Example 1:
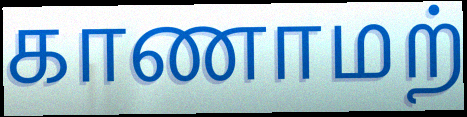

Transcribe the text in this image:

காணாமற்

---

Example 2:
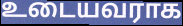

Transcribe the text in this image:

உடையவராக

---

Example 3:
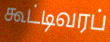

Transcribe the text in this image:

கூட்டிவரப்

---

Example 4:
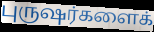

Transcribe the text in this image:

புருஷர்களைக்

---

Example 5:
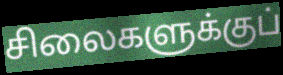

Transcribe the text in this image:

சிலைகளுக்குப்